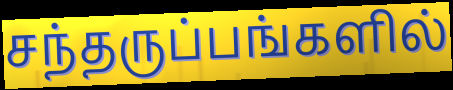
சந்தருப்பங்களில்